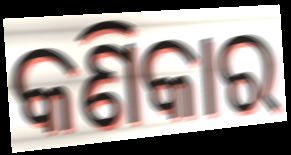
କଣିକାର